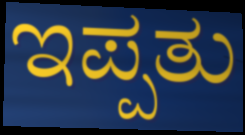
ಇಪ್ಪತು